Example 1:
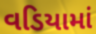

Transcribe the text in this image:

વડિયામાં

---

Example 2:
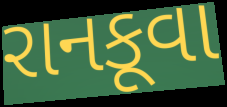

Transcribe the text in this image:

રાનકૂવા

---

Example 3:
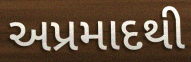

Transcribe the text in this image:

અપ્રમાદથી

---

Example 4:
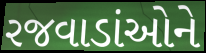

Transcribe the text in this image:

રજવાડાંઓને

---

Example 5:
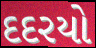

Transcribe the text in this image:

દદરયો